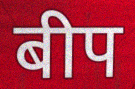
बीप